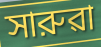
সাৰুৱা